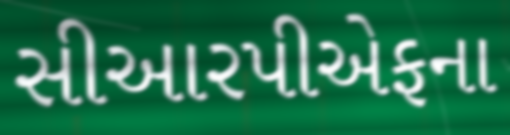
સીઆરપીએફના